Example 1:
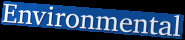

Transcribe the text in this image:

Environmental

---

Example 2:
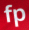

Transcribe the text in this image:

fp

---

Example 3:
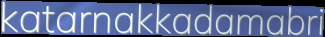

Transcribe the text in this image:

katarnakkadamabri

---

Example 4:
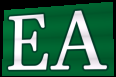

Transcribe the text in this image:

EA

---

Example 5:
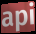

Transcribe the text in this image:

api